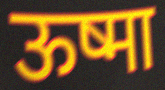
ऊष्मा